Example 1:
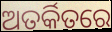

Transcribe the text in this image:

ଅତର୍କିତରେ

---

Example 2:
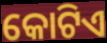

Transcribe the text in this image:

କୋଟିଏ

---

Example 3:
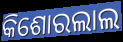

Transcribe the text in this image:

କିଶୋରଲାଲ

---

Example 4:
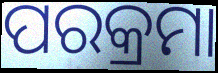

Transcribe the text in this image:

ପରକ୍ରମା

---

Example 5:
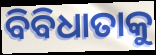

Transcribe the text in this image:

ବିବିଧାତାକୁ